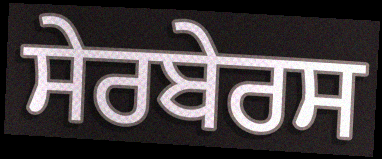
ਸੇਰਬੇਰਸ